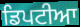
ਡਿਪਟੀਆ